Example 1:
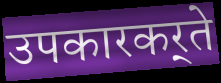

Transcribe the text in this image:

उपकारकर्ते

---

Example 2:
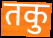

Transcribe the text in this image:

तकु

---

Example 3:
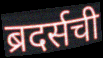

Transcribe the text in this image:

ब्रदर्सची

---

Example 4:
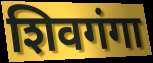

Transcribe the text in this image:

शिवगंगा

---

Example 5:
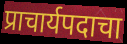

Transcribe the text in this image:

प्राचार्यपदाचा